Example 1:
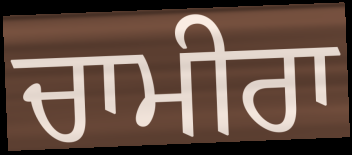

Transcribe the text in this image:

ਚਾਮੀਰਾ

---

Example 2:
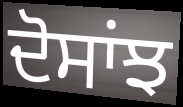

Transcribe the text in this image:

ਦੋਸਾਂਝ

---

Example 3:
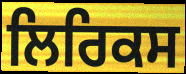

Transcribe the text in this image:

ਲਿਰਿਕਸ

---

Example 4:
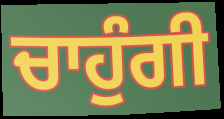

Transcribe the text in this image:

ਚਾਹੁੰਗੀ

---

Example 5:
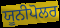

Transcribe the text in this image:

ਯੂਨੀਪੋਲਰ